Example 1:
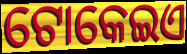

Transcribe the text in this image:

ଟୋକେଇଏ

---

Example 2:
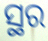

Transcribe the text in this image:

ସ୍ଥର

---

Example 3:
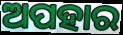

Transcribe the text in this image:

ଅପହାର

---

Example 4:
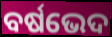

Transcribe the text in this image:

ବର୍ଷଭେଦ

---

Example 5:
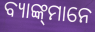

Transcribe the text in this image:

ବ୍ୟାଙ୍କ୍‌ମାନେ